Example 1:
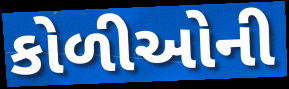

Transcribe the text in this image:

કોળીઓની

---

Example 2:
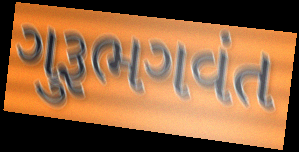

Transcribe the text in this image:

ગુરૂભગવંત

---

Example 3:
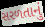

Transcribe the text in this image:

સરળતાનું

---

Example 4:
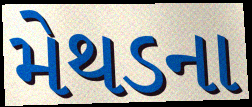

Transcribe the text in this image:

મેથડના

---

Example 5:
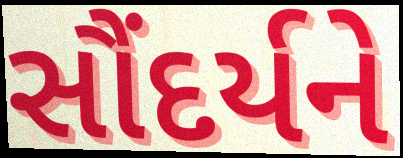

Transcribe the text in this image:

સૌંદર્યને